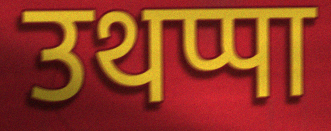
उथप्पा